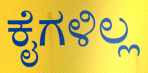
ಕೈಗಳಿಲ್ಲ